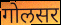
गोलसर